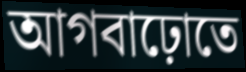
আগবাঢ়োতে